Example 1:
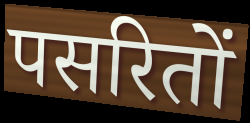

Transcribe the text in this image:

पसरितों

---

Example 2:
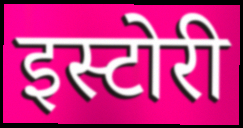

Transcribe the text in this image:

इस्टोरी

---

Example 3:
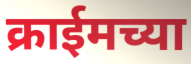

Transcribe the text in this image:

क्राईमच्या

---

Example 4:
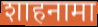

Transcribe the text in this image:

शाहनामा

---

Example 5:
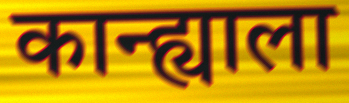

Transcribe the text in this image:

कान्ह्याला